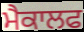
ਮੈਕਾਲਫ